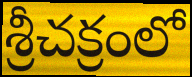
శ్రీచక్రంలో